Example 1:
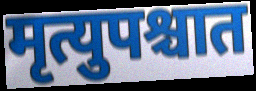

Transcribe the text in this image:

मृत्युपश्चात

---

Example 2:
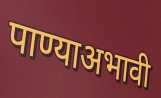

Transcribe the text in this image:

पाण्याअभावी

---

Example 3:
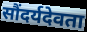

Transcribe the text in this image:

सौंदर्यदेवता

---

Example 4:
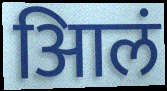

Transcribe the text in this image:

आिलं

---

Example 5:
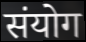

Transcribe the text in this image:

संयोग